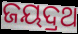
ଜୟଦ୍ରଥ